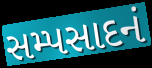
સમ્પસાદનં